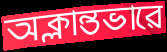
অক্লান্তভাৱে